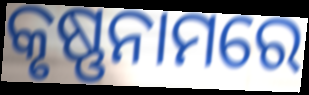
କୃଷ୍ଣନାମରେ